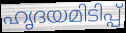
ഹൃദയമിടിപ്പ്